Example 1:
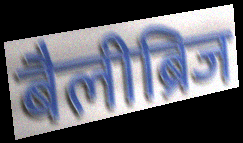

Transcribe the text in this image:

बैलीब्रिज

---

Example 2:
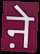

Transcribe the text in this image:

ऩे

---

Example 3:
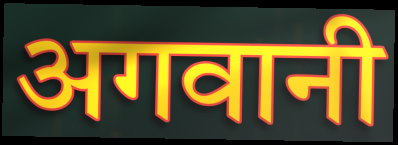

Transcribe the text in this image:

अगवानी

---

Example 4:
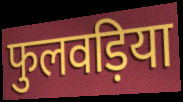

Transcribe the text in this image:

फुलवड़िया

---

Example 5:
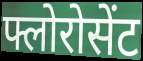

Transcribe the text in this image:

फ्लोरोसेंट